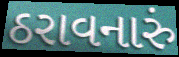
ઠરાવનારું